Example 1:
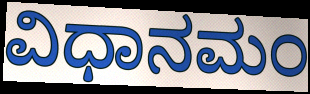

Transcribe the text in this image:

ವಿಧಾನಮಂ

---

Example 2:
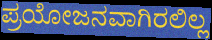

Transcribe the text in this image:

ಪ್ರಯೋಜನವಾಗಿರಲಿಲ್ಲ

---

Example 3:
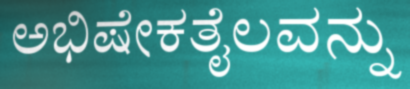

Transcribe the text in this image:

ಅಭಿಷೇಕತೈಲವನ್ನು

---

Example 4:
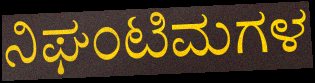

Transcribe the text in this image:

ನಿಘಂಟಿಮಗಳ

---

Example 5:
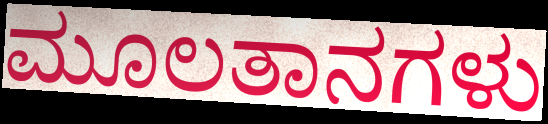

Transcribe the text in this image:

ಮೂಲತಾನಗಳು